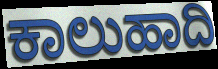
ಕಾಲುಹಾದಿ